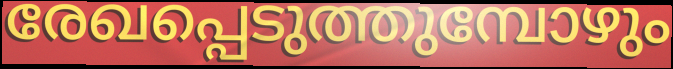
രേഖപ്പെടുത്തുമ്പോഴും